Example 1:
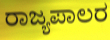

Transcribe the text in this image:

ರಾಜ್ಯಪಾಲರ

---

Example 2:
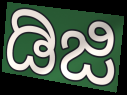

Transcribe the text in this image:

ಡಿಜಿ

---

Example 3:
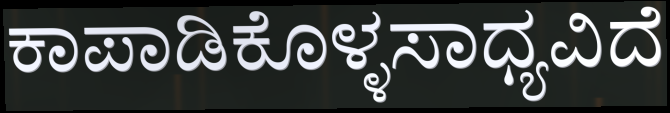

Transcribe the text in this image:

ಕಾಪಾಡಿಕೊಳ್ಳಸಾಧ್ಯವಿದೆ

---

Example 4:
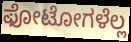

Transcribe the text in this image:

ಫೋಟೋಗಳೆಲ್ಲ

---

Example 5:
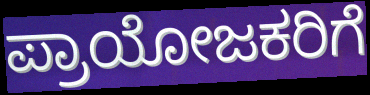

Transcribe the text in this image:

ಪ್ರಾಯೋಜಕರಿಗೆ